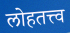
लोहतत्त्व